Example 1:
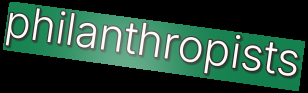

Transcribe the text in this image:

philanthropists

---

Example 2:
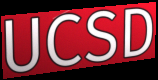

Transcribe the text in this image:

UCSD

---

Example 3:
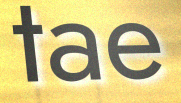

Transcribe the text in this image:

tae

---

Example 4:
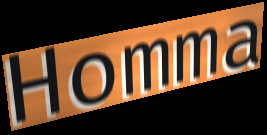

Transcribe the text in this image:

Homma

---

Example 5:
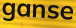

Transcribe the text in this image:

ganse